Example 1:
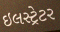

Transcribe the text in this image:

ઇલસ્ટ્રેટર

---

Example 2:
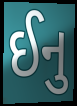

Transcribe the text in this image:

ઈનુ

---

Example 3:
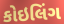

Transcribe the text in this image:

કોઇલિંગ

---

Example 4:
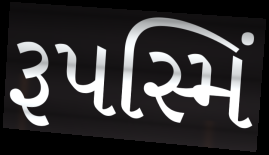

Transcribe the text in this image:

રૂપસ્મિં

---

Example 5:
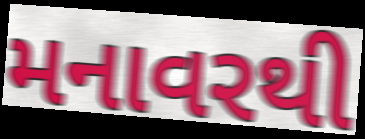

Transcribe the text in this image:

મનાવરથી